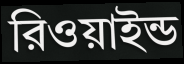
রিওয়াইন্ড